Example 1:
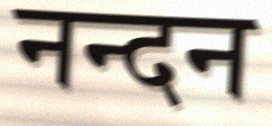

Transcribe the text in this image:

नन्दन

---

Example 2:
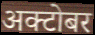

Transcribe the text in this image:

अक्टोबर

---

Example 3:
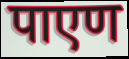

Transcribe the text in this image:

पाएण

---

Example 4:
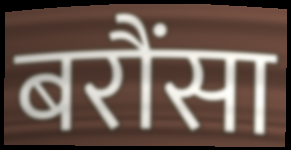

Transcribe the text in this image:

बरौंसा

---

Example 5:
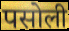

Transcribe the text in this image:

पसोली